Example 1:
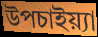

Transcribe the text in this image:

উপচাইয়্যা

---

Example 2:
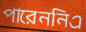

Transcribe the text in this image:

পারেননিএ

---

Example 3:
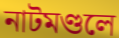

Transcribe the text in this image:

নাটমণ্ডলে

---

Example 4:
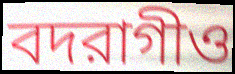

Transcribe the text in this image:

বদরাগীও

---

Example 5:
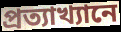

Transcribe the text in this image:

প্রত্যাখ্যানে